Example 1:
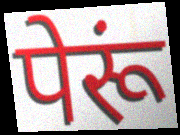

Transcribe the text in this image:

पेरूं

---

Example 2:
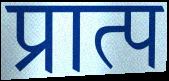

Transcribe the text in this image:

प्रात्प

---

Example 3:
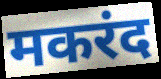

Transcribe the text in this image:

मकरंद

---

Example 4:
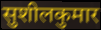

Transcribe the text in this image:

सुशीलकुमार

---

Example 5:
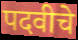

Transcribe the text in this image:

पदवीचे